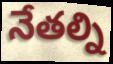
నేతల్ని